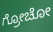
ಗ್ರೋಚೋ